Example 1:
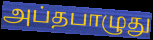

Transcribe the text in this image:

அப்தபாழுது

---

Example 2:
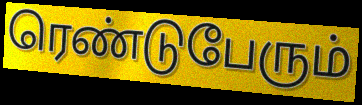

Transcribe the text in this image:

ரெண்டுபேரும்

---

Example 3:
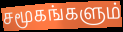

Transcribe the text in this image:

சமூகங்களும்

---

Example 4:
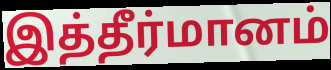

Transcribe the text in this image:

இத்தீர்மானம்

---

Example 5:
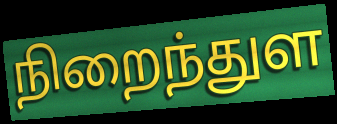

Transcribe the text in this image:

நிறைந்துள